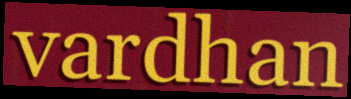
vardhan